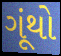
ગૂંથો